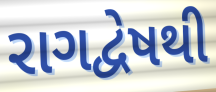
રાગદ્વેષથી